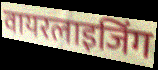
वायरलाइजिंग